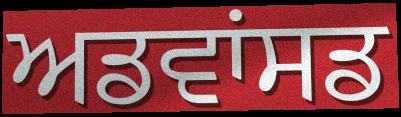
ਅਡਵਾਂਸਡ